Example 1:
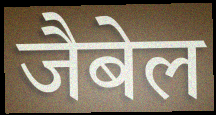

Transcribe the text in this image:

जैबेल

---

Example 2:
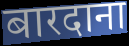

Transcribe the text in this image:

बारदाना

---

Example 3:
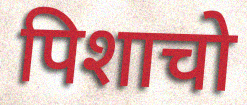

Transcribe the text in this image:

पिशाचो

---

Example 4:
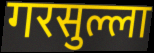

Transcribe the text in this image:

गरसुल्ला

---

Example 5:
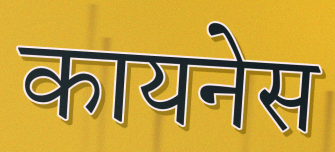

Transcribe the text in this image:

कायनेस